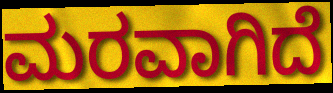
ಮರವಾಗಿದೆ